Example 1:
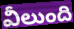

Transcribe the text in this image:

వీలుంది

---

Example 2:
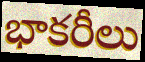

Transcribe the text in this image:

భాకరీలు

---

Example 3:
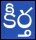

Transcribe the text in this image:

కీర్త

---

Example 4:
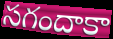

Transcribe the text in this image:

సగందాకా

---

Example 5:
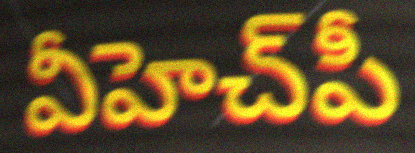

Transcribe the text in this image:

వీహెచ్‌పీ